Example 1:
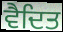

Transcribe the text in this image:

ਵੈਦਿਤ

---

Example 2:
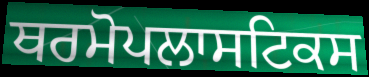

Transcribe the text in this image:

ਥਰਮੋਪਲਾਸਟਿਕਸ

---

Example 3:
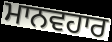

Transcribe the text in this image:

ਮਾਨਵਹਾਰ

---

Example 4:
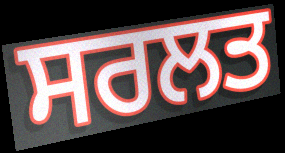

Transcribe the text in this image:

ਸਰਲਤ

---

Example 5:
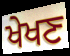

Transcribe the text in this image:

ਖੇਖਣ